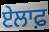
ਏਲਾਫ਼